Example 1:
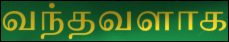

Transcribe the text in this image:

வந்தவளாக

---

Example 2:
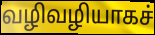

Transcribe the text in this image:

வழிவழியாகச்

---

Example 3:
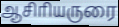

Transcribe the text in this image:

ஆசிரியருரை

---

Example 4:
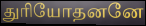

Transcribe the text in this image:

துரியோதனனே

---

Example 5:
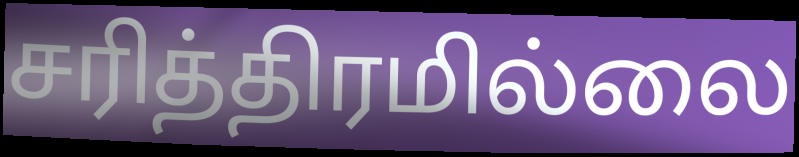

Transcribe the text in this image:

சரித்திரமில்லை